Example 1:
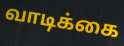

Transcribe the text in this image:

வாடிக்கை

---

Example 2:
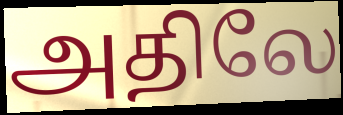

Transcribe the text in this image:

அதிலே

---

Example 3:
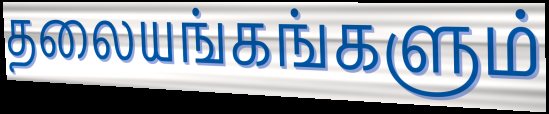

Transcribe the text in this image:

தலையங்கங்களும்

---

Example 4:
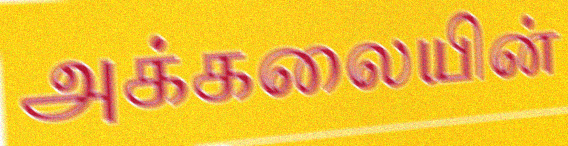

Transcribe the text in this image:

அக்கலையின்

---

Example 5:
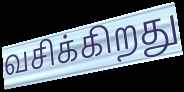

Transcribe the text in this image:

வசிக்கிறது